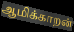
ஆமிக்காறன்